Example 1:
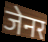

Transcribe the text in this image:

जेनर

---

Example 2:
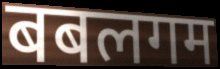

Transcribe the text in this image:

बबलगम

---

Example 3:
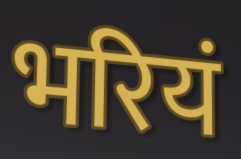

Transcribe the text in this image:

भरियं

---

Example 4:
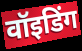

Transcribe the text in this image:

वॉइडिंग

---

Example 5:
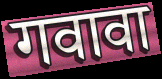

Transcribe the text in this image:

गवावा